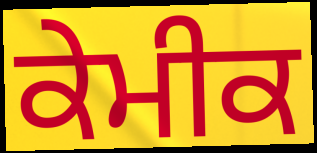
ਕੇਮੀਕ